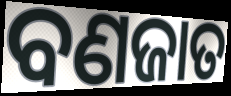
ବଣଜାତ